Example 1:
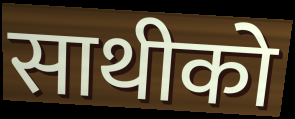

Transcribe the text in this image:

साथीको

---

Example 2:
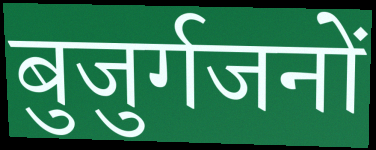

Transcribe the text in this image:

बुजुर्गजनों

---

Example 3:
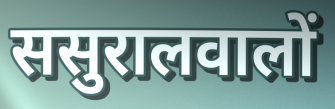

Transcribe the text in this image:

ससुरालवालों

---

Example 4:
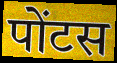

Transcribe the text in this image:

पोंटस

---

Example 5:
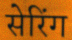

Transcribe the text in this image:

सेरिंग